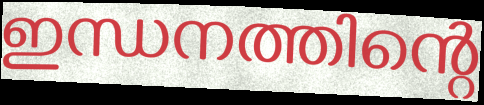
ഇന്ധനത്തിന്റെ